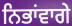
ਨਿਭਾਂਵਾਗੇ